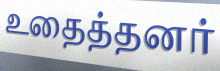
உதைத்தனர்